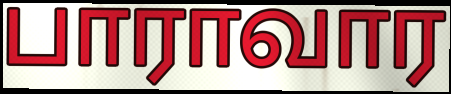
பாராவார